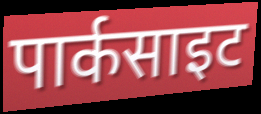
पार्कसाइट